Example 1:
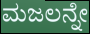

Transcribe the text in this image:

ಮಜಲನ್ನೇ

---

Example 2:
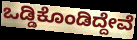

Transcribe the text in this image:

ಒಡ್ಡಿಕೊಂಡಿದ್ದೇವೆ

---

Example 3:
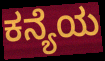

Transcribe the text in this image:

ಕನ್ಯೆಯ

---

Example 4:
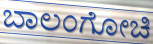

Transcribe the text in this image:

ಬಾಲಂಗೋಚಿ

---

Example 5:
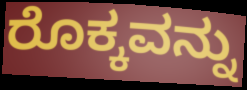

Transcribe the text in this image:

ರೊಕ್ಕವನ್ನು